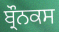
ਬ੍ਰੌਨਕਸ